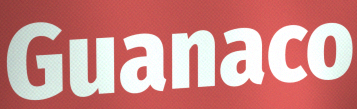
Guanaco